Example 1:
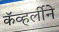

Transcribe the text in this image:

कॅव्हर्लीने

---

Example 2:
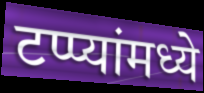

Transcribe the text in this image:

टप्प्यांमध्ये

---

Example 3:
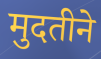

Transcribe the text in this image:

मुदतीने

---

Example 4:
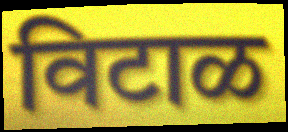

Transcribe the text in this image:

विटाळ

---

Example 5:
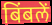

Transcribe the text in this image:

बिंबलें